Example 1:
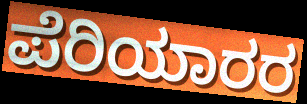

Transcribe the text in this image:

ಪೆರಿಯಾರರ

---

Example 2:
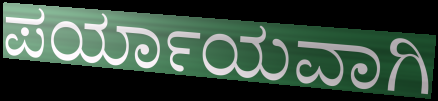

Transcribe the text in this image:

ಪರ್ಯಾಯವಾಗಿ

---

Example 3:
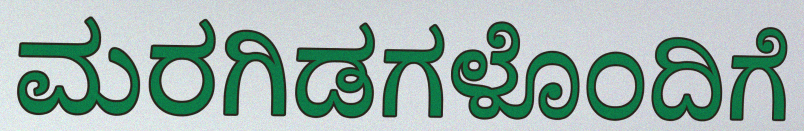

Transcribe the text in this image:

ಮರಗಿಡಗಳೊಂದಿಗೆ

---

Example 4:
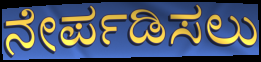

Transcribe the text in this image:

ನೇರ್ಪಡಿಸಲು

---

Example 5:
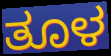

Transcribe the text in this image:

ತೂಳ